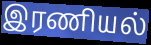
இரணியல்